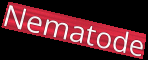
Nematode